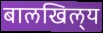
बालखिल्य